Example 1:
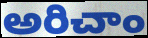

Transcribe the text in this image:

అరిచాం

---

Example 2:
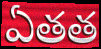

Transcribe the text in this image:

ఏతత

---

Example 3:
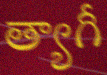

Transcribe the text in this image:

త్యాగీ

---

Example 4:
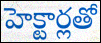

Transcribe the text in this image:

హెక్టార్లతో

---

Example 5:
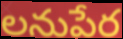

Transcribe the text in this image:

లనుపేర